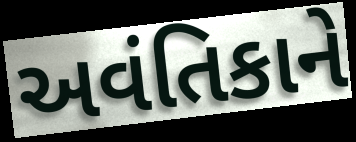
અવંતિકાને